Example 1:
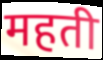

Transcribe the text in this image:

महती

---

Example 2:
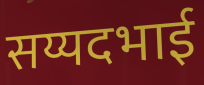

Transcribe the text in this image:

सय्यदभाई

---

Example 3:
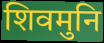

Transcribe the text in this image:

शिवमुनि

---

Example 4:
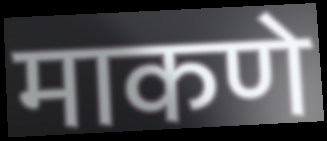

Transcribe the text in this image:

माकणे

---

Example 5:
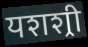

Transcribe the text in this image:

यशश्री